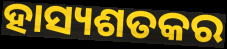
ହାସ୍ୟଶତକର